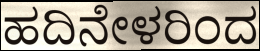
ಹದಿನೇಳರಿಂದ